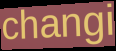
changi